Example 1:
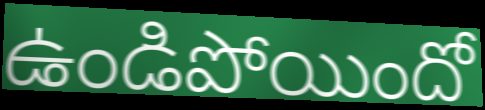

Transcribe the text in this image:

ఉండిపోయిందో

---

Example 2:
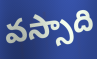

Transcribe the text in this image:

వస్సాది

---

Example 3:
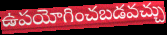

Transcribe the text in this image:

ఉపయోగించబడవచ్చు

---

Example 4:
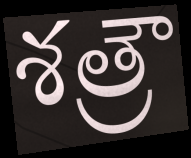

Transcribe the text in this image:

శత్రౌ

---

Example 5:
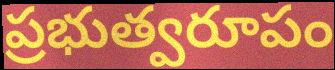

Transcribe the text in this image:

ప్రభుత్వరూపం